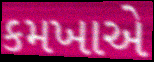
કમખાએ